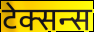
टेक्सन्स